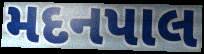
મદનપાલ